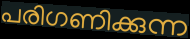
പരിഗണിക്കുന്ന